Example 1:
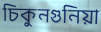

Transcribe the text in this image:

চিকুনগুনিয়া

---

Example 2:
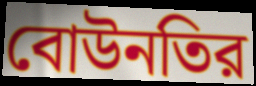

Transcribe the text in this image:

বোউনতির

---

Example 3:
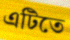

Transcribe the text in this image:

এটিতে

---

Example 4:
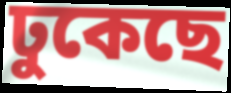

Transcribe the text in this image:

ঢুকেছে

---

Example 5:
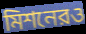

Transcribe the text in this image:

মিশনেরও